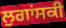
ਲੁਗਾਂਸਕੀ